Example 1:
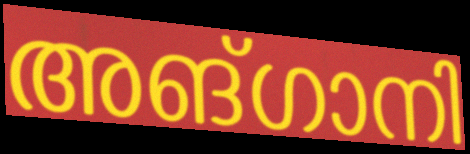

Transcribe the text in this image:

അങ്ഗാനി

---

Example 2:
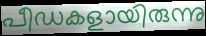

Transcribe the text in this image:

പീഡകളായിരുന്നു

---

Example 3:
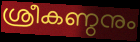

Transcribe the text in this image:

ശ്രീകണ്ഠനും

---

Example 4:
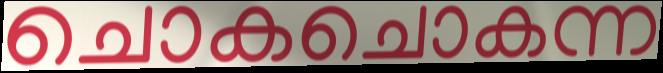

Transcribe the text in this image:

ചൊകചൊകന്ന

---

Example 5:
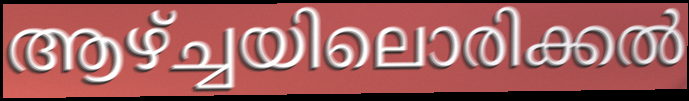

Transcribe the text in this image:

ആഴ്ച്ചയിലൊരിക്കൽ